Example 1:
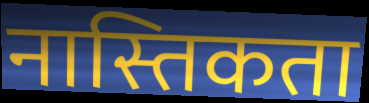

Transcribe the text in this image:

नास्तिकता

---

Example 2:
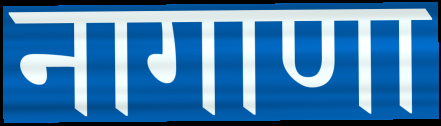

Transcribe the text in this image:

नागाणा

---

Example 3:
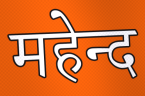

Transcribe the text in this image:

महेन्द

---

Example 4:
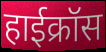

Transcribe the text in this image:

हाईक्रॉस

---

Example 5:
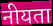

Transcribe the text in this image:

नीयता